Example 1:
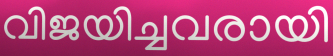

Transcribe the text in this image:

വിജയിച്ചവരായി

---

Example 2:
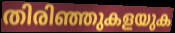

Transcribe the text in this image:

തിരിഞ്ഞുകളയുക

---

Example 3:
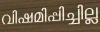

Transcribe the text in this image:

വിഷമിപ്പിച്ചില്ല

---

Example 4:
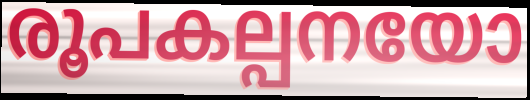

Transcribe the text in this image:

രൂപകല്പനയോ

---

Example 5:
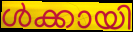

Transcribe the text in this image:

ൾക്കായി